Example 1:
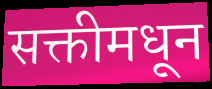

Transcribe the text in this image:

सक्तीमधून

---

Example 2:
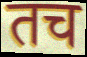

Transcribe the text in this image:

तच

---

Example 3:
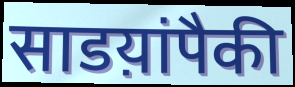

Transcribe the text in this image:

साडय़ांपैकी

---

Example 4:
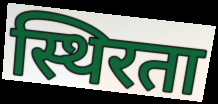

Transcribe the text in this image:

स्थिरता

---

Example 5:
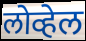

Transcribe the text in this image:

लोव्हेल